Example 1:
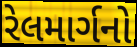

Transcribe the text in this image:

રેલમાર્ગનો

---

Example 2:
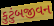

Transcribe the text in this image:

કુટુંબજીવન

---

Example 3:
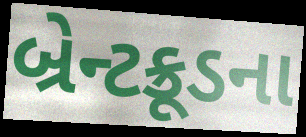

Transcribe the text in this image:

બ્રેન્ટક્રૂડના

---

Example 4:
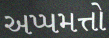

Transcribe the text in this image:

અપ્પમત્તો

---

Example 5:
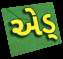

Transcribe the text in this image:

એડ્